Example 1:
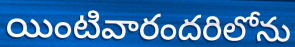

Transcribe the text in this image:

యింటివారందరిలోను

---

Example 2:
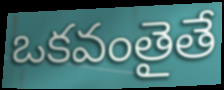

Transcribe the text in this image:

ఒకవంతైతే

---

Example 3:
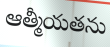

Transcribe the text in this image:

ఆత్మీయతను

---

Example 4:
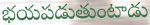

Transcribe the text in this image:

భయపడుతుంటాడు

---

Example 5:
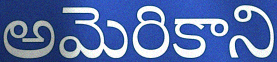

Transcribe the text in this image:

అమెరికాని